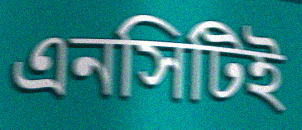
এনসিটিই